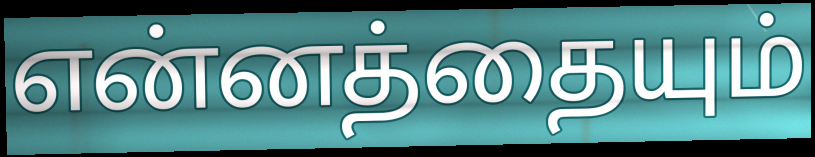
என்னத்தையும்